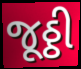
જૂઠ્ઠી